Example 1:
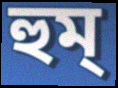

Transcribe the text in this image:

হুম্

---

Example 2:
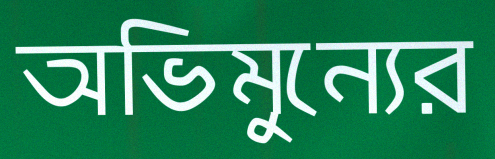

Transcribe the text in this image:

অভিমুন্যের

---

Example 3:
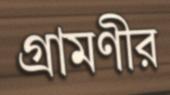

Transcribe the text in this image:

গ্রামণীর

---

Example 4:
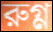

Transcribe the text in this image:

রুগ্ণ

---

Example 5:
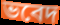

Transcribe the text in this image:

ভবেদ